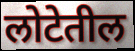
लोटेतील